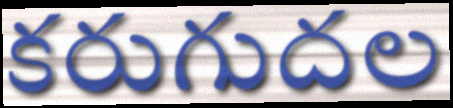
కరుగుదల